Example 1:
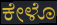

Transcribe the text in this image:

ಕೇಳೊ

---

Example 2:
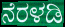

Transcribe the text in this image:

ನೆರಳಡಿ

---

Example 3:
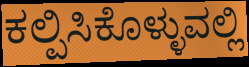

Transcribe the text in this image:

ಕಲ್ಪಿಸಿಕೊಳ್ಳುವಲ್ಲಿ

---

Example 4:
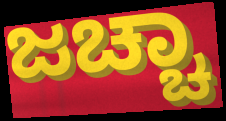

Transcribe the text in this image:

ಜಚ್ಚಾ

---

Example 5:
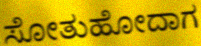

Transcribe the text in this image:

ಸೋತುಹೋದಾಗ